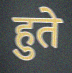
हुते